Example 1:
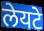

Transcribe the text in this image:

लेयटे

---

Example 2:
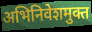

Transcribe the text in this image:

अभिनिवेशमुक्त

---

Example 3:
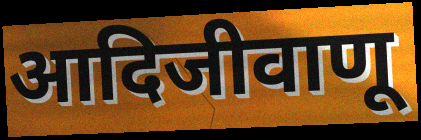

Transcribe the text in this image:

आदिजीवाणू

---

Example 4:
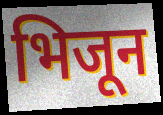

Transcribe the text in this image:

भिजून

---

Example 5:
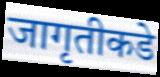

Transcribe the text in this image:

जागृतीकडे